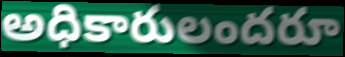
అధికారులందరూ